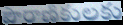
పౌరాణికులకు